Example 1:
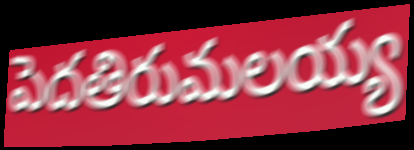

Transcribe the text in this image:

పెదతిరుమలయ్య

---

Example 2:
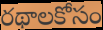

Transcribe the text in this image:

రథాలకోసం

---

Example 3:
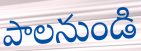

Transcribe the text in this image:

పాలనుండి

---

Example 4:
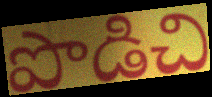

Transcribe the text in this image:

పొడిచి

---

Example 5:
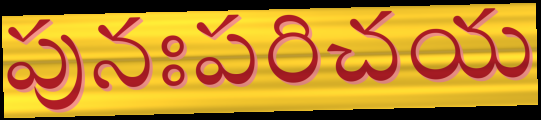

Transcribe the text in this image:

పునఃపరిచయ